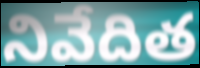
నివేదిత